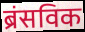
ब्रंसविक